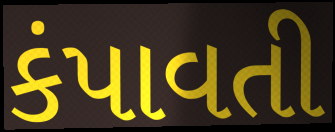
કંપાવતી